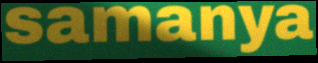
samanya